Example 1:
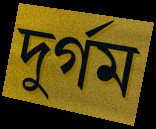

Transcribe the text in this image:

দুৰ্গম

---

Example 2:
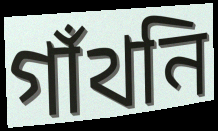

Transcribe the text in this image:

গাঁথনি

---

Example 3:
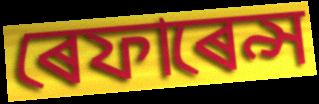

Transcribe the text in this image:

ৰেফাৰেন্স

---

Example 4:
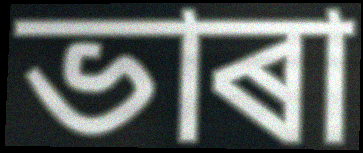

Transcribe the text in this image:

ভাৰা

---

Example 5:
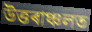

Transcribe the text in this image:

উত্তৰাঞ্চলত